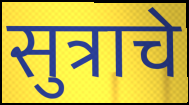
सुत्राचे